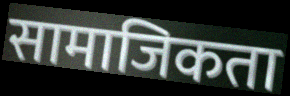
सामाजिकता